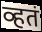
व्हतं